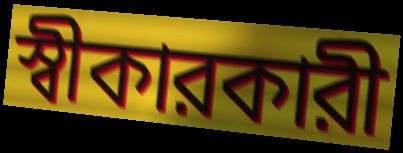
স্বীকারকারী